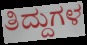
ತಿದ್ದುಗಳ